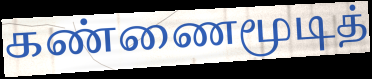
கண்ணைமூடித்